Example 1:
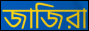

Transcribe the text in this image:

জাজিরা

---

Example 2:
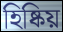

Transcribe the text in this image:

হিষ্কিয়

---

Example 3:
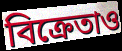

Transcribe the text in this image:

বিক্রেতাও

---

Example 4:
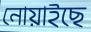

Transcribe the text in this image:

নোয়াইছে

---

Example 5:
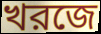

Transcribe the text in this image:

খরজে